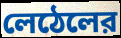
লেঠেলের